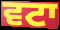
ਵਟਾ